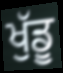
ਖੁੱਡੂ